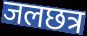
जलछत्र